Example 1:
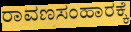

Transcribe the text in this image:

ರಾವಣಸಂಹಾರಕ್ಕೆ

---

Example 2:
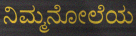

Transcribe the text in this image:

ನಿಮ್ಮನೋಲೆಯ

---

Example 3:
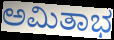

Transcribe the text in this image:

ಅಮಿತಾಭ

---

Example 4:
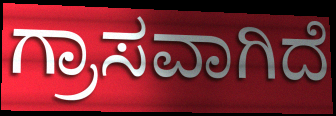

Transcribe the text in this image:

ಗ್ರಾಸವಾಗಿದೆ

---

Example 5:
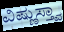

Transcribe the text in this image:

ವಿಷ್ಣುಸ್ತ್ವಾ